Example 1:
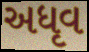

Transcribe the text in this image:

અધૃવ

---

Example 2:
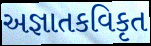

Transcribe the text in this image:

અજ્ઞાતકવિકૃત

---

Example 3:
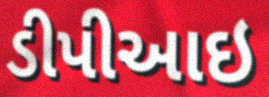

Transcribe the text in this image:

ડીપીઆઇ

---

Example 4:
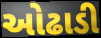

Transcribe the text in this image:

ઓઢાડી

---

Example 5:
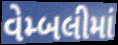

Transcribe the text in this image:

વેમ્બલીમાં